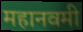
महानवमी